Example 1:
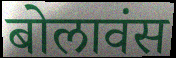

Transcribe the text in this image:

बोलावंस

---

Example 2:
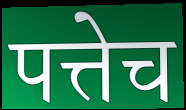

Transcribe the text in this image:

पत्तेच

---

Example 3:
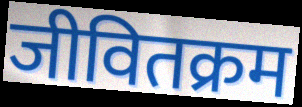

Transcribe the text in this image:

जीवितक्रम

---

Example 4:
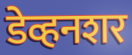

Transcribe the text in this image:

डेव्हनशर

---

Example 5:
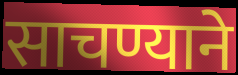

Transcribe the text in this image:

साचण्याने